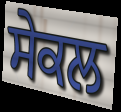
ਸੇਕਲ